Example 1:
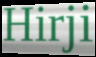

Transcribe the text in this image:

Hirji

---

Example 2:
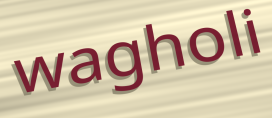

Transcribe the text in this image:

wagholi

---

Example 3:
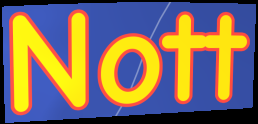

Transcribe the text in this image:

Nott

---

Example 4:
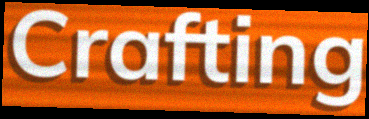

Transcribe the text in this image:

Crafting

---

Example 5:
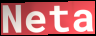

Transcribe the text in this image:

Neta